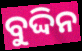
ବୁଦ୍ଦିନ